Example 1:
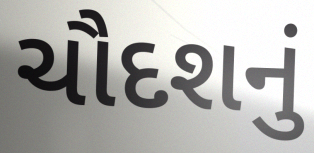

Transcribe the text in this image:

ચૌદશનું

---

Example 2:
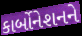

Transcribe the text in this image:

કાર્બોનેશનને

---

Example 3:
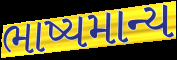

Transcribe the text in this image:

ભાષ્યમાન્ય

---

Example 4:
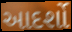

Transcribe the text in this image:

આદર્શો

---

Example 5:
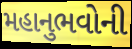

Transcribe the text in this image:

મહાનુભવોની